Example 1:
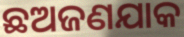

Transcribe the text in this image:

ଛଅଜଣଯାକ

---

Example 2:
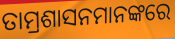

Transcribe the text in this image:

ତାମ୍ରଶାସନମାନଙ୍କରେ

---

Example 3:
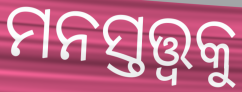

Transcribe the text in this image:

ମନସ୍ତତ୍ତ୍ୱକୁ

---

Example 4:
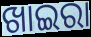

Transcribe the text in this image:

ଖାଇରା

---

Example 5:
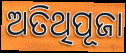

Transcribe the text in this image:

ଅତିଥିପୂଜା